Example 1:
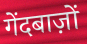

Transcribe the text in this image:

गेंदबाज़ों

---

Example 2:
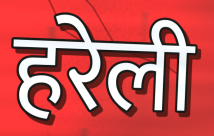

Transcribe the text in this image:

हरेली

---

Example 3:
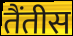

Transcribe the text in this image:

तैंतीस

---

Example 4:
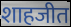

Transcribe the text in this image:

शाहजीत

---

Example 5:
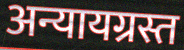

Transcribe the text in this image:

अन्यायग्रस्त